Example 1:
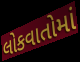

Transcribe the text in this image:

લોકવાતોમાં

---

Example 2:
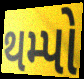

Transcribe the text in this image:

થમ્પો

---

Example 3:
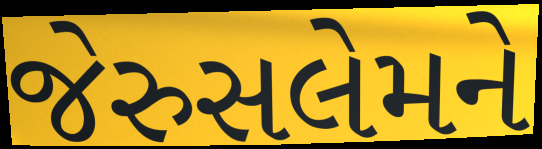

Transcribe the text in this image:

જેરુસલેમને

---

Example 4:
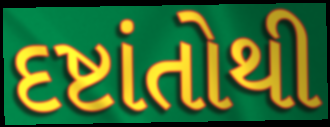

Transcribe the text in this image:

દષ્ટાંતોથી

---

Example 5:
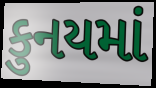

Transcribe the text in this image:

કુનયમાં